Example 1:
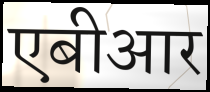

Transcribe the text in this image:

एबीआर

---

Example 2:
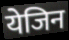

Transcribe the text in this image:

येजिन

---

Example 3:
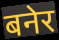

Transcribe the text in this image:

बनेर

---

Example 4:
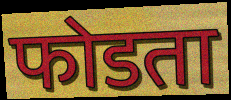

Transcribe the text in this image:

फोडता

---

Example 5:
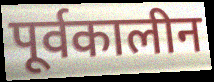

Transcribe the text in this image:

पूर्वकालीन